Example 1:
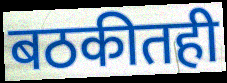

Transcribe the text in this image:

बठकीतही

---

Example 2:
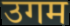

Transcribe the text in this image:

उगम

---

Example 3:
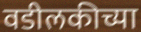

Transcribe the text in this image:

वडीलकीच्या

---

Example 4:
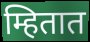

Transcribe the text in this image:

म्हितात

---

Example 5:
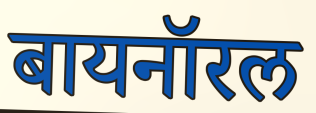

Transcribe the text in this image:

बायनॉरल